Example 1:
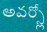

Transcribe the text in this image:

అవర్స్లో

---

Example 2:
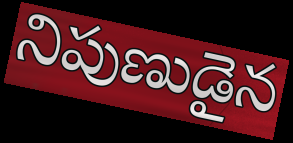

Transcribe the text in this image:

నిపుణుడైన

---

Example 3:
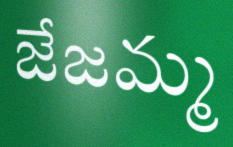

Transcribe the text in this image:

జేజమ్మ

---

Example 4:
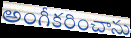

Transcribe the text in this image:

అంగీకరించాను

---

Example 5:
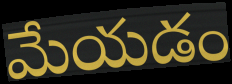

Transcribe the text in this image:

మేయడం